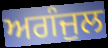
ਅਗੰਜੁਲ